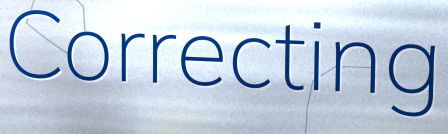
Correcting